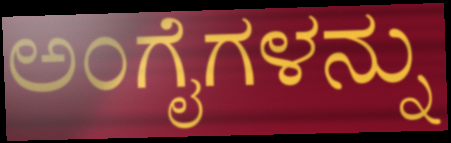
ಅಂಗೈಗಳನ್ನು